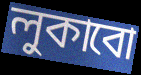
লুকাবো